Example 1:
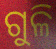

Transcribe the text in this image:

ଗୁଳି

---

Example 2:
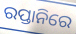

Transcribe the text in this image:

ରପ୍ତାନିରେ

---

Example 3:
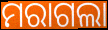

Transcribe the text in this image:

ମରାଗଲା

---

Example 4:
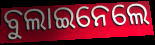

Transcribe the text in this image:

ବୁଲାଇନେଲେ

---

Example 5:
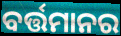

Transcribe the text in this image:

ବର୍ତ୍ତମାନର